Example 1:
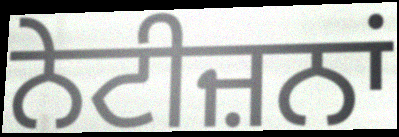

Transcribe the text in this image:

ਨੇਟੀਜ਼ਨਾਂ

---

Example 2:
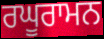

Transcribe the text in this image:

ਰਘੂਰਾਮਨ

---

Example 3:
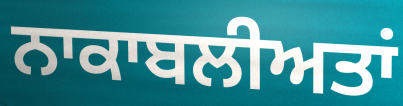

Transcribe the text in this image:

ਨਾਕਾਬਲੀਅਤਾਂ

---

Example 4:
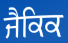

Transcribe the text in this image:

ਜੈਕਿਕ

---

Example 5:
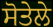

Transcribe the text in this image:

ਸੋਤੇਲੇ